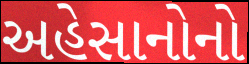
અહેસાનોનો